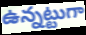
ఉన్నట్టుగా